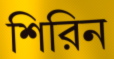
শিরিন